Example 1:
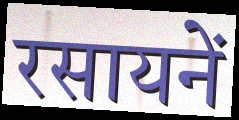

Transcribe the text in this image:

रसायनें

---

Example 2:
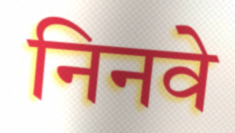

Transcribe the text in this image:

निनवे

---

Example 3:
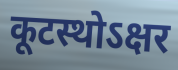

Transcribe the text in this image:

कूटस्थोऽक्षर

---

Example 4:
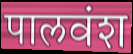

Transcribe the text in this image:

पालवंश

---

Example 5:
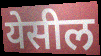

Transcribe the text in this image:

येसील